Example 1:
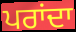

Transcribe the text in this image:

ਪਰਾਂਦਾ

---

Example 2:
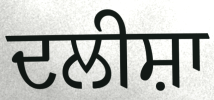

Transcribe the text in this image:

ਦਲੀਸ਼ਾ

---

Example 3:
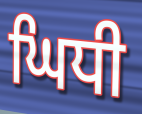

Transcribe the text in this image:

ਘਿਧੀ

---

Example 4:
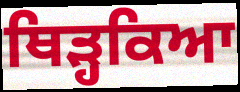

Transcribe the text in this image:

ਥਿੜ੍ਹਕਿਆ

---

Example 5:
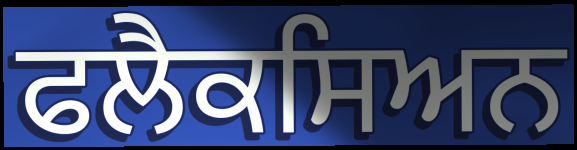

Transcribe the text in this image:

ਫਲੈਕਸਿਅਨ